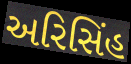
અરિસિંહ